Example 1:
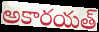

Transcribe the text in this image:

అకారయత్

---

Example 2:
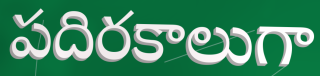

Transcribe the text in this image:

పదిరకాలుగా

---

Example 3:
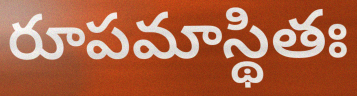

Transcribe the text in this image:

రూపమాస్థితః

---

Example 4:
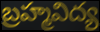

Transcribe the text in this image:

బ్రహ్మవిద్య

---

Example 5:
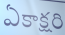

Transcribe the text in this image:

ఏకాక్షరి